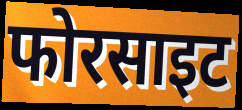
फोरसाइट